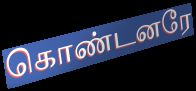
கொண்டனரே